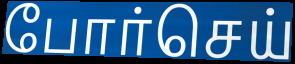
போர்செய்